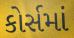
કોર્સમાં